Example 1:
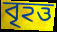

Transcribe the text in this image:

বৃহত্ত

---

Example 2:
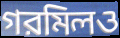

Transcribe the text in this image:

গরমিলও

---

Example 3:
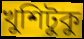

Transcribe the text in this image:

খুশিটুকু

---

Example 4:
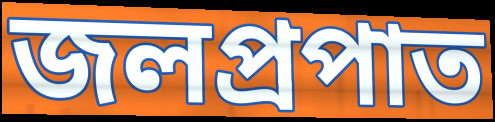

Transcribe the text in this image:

জলপ্রপাত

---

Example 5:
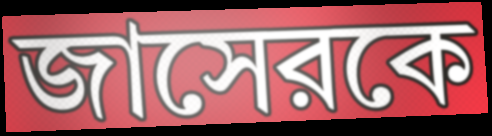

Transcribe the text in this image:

জাসেরকে